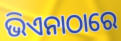
ଭିଏନାଠାରେ